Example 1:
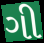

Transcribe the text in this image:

ગી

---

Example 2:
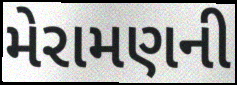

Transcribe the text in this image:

મેરામણની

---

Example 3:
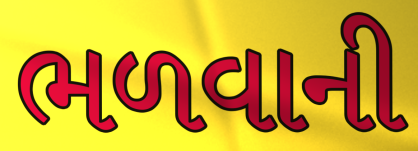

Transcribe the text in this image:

ભળવાની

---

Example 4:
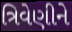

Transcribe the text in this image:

ત્રિવેણીને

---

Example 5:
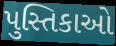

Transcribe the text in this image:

પુસ્તિકાઓ